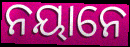
ନୟାନେ